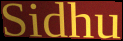
Sidhu